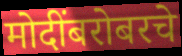
मोदींबरोबरचे